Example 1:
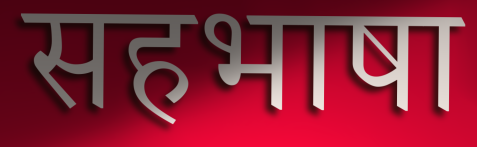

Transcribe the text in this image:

सहभाषा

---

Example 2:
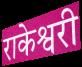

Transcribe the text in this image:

राकेश्वरी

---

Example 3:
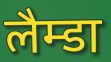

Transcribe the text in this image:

लैम्डा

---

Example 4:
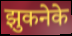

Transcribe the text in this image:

झुकनेके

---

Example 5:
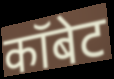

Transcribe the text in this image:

कॉबेट